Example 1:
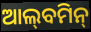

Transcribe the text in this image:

ଆଲ୍‌ବମିନ୍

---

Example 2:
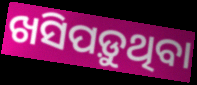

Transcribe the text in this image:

ଖସିପଡ଼ୁଥିବା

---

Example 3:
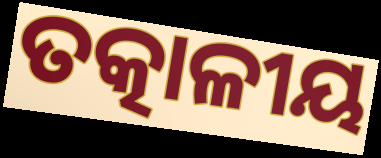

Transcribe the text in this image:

ତତ୍କାଳୀୟ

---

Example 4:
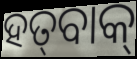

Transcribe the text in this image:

ହତ୍‌ବାକ୍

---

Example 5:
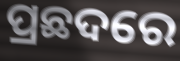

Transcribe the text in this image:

ପ୍ରଛଦରେ